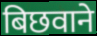
बिछवाने